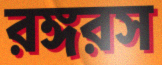
রঙ্গরস